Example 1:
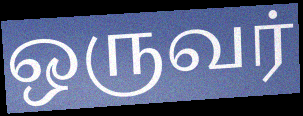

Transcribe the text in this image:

ஒருவர்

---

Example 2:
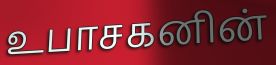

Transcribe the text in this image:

உபாசகனின்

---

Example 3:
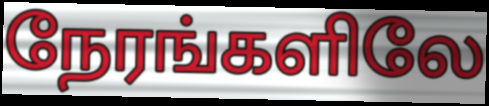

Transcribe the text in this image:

நேரங்களிலே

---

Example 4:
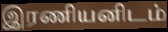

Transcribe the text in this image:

இரணியனிடம்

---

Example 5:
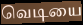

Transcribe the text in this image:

வெடியை